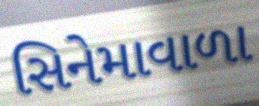
સિનેમાવાળા